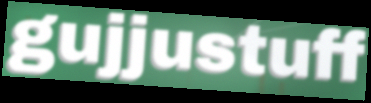
gujjustuff